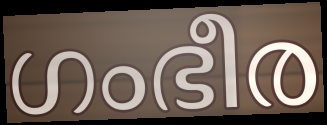
ഗംഭീര